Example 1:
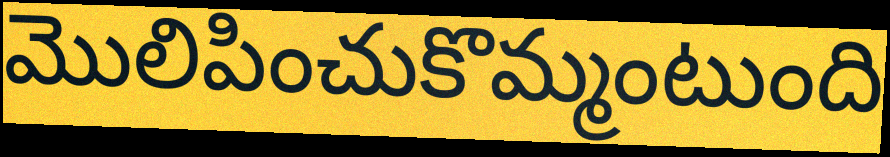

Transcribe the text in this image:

మొలిపించుకొమ్మంటుంది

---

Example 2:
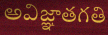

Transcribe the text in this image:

అవిజ్ఞాతగతి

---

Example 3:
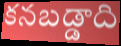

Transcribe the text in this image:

కనబడ్డాది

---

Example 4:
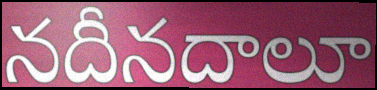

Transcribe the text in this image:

నదీనదాలూ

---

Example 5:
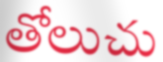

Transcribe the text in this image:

తోలుచు